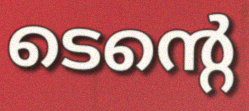
ടെന്റെ